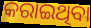
କରାଇଥିବା